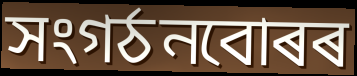
সংগঠনবোৰৰ